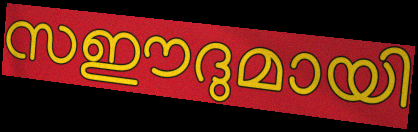
സഈദുമായി